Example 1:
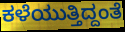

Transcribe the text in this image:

ಕಳೆಯುತ್ತಿದ್ದಂತೆ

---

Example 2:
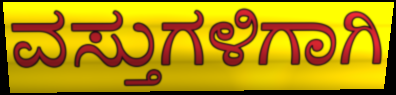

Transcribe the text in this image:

ವಸ್ತುಗಳಿಗಾಗಿ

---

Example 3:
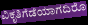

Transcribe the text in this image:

ವಿಕೃತಿಗೆಡೆಯಾಗದಿರೊ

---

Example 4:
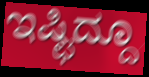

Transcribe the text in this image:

ಇಷ್ಟಿದ್ದೂ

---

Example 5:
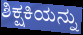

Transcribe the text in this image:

ಶಿಕ್ಷಕಿಯನ್ನು